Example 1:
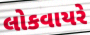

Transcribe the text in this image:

લોકવાયરે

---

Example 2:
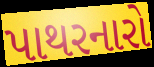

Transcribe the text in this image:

પાથરનારો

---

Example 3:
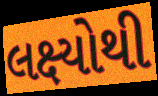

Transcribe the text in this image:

લક્ષ્યોથી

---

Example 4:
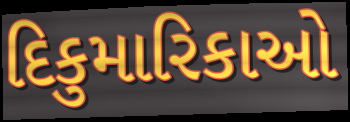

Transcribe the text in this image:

દિકુમારિકાઓ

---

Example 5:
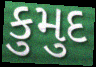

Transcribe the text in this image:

કુમુદ